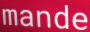
mande